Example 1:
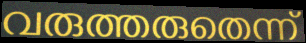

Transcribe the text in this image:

വരുത്തരുതെന്ന്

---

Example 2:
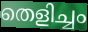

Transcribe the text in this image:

തെളിച്ചം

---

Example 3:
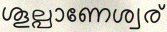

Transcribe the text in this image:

ശൂല്പാണേശ്വര്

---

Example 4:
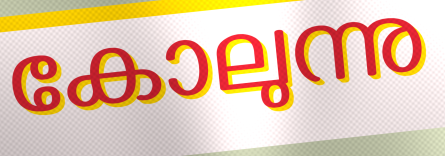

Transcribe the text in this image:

കോലുന്നു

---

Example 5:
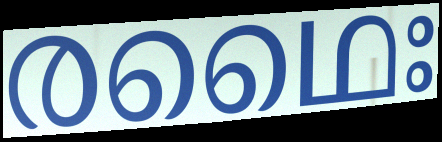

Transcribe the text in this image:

രഥൈഃ